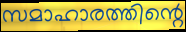
സമാഹാരത്തിന്റെ